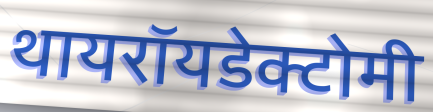
थायरॉयडेक्टोमी